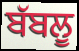
ਬੱਬਲੂ